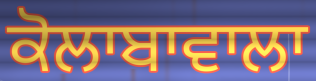
ਕੋਲਾਬਾਵਾਲਾ